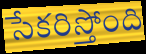
సేకరిస్తోంది